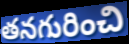
తనగురించి